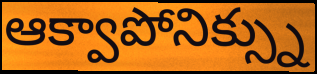
ఆక్వాపోనిక్స్ను